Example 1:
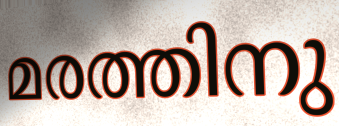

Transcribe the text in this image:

മരത്തിനു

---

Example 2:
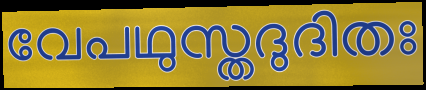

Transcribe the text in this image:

വേപഥുസ്തദുദിതഃ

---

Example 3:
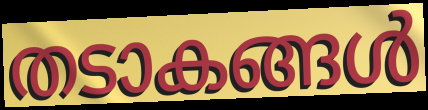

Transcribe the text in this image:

തടാകങ്ങൾ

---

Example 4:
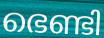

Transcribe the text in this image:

ഭെണ്ടി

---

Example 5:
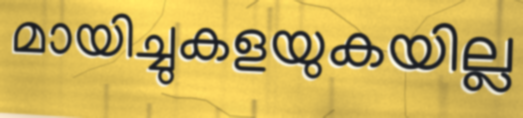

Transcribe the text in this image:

മായിച്ചുകളയുകയില്ല